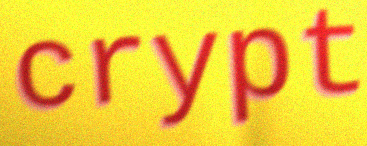
crypt